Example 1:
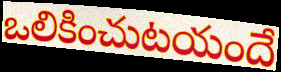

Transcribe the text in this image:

ఒలికించుటయందే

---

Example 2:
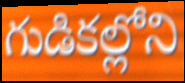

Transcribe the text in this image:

గుడికల్లోని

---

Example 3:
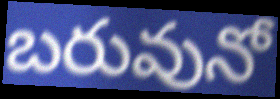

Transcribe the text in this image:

బరువునో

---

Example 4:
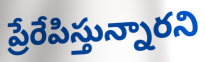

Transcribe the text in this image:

ప్రేరేపిస్తున్నారని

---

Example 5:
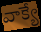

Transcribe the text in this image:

వాక్యే